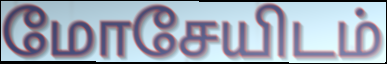
மோசேயிடம்